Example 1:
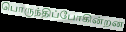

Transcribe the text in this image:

பொருந்திப்போகின்றன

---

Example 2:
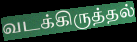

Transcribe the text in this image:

வடக்கிருத்தல்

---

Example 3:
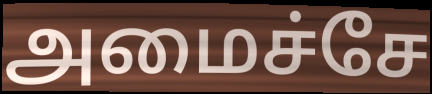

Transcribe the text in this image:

அமைச்சே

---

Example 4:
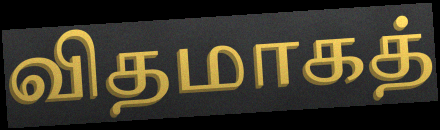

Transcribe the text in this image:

விதமாகத்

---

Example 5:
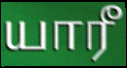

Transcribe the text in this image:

யாரீ